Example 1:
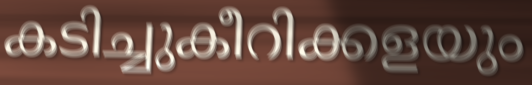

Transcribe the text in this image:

കടിച്ചുകീറിക്കളയും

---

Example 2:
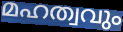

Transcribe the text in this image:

മഹത്വവും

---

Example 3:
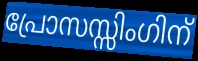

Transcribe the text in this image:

പ്രോസസ്സിംഗിന്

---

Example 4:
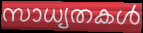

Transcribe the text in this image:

സാധ്യതകൾ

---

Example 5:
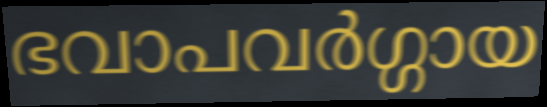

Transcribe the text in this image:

ഭവാപവർഗ്ഗായ